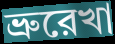
ভ্রুরেখা